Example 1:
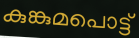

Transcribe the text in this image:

കുങ്കുമപൊട്ട്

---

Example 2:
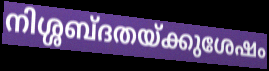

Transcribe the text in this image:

നിശ്ശബ്ദതയ്ക്കുശേഷം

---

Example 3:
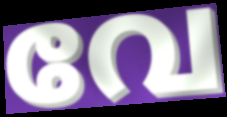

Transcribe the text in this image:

വേ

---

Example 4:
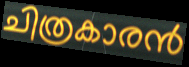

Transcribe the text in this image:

ചിത്രകാരൻ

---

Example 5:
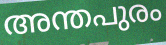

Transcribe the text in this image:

അന്തപുരം